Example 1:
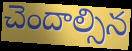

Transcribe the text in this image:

చెందాల్సిన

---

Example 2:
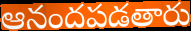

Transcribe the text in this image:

ఆనందపడతారు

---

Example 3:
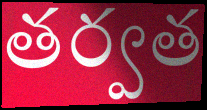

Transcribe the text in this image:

తర్వత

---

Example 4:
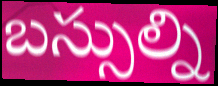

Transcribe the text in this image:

బస్సుల్ని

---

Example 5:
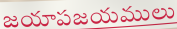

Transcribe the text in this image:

జయాపజయములు